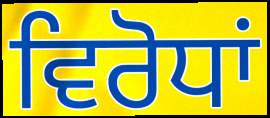
ਵਿਰੋਧਾਂ